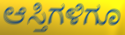
ಆಸ್ತಿಗಳಿಗೂ